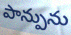
పాన్పును